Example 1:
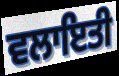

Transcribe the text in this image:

ਵਲਾਇਤੀ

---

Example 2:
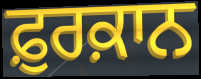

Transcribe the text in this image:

ਫ਼ੁਰਕ਼ਾਨ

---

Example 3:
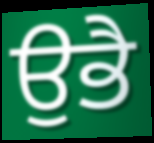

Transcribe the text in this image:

ਉਭੈ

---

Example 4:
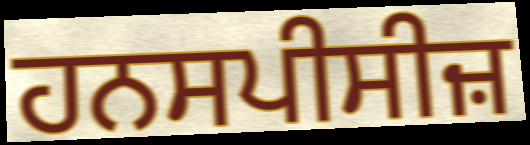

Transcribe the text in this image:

ਹਨਸਪੀਸੀਜ਼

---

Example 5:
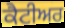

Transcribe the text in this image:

ਕੈਟੀਅਰ